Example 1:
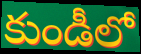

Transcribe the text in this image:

కుండీలో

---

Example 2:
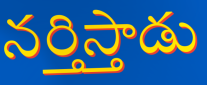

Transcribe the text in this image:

నర్తిస్తాడు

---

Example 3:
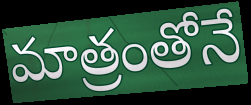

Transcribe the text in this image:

మాత్రంతోనే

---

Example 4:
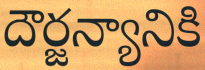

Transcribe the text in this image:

దౌర్జన్యానికి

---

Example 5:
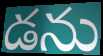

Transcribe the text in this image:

డను